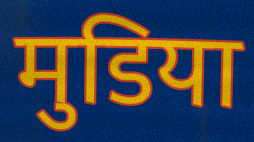
मुडिया